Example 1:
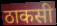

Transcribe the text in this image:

ठाकसी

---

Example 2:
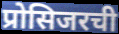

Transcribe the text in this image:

प्रोसिजरची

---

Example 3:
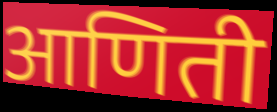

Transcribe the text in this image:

आणिती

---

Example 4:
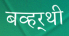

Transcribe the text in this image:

बव्हर्थी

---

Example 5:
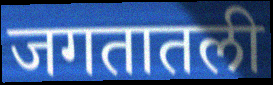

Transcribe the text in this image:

जगतातली